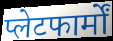
प्लेटफार्मों